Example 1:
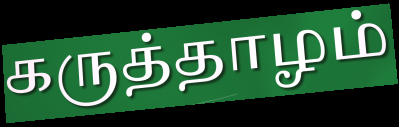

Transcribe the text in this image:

கருத்தாழம்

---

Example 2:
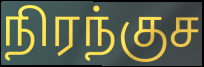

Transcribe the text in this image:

நிரந்குச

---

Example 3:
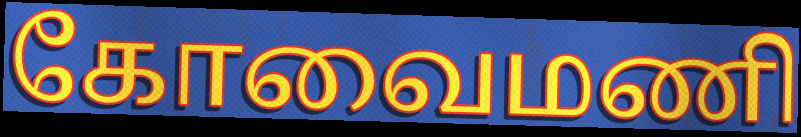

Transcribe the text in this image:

கோவைமணி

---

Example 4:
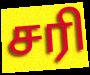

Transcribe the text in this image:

சரி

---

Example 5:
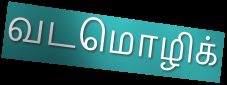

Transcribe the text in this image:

வடமொழிக்